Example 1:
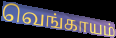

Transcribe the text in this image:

வெங்காயம்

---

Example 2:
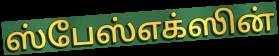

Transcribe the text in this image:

ஸ்பேஸ்எக்ஸின்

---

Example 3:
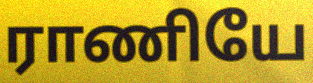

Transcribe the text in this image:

ராணியே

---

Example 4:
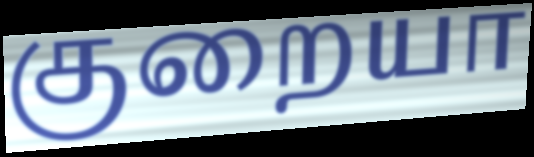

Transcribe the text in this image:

குறையா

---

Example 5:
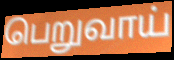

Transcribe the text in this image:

பெறுவாய்